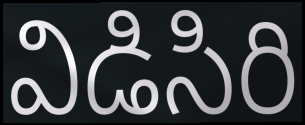
విడిసిరి